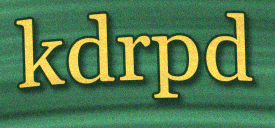
kdrpd